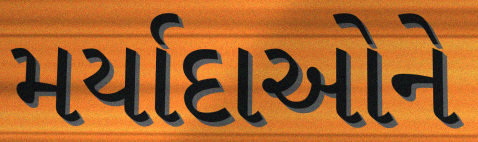
મર્યાદાઓને